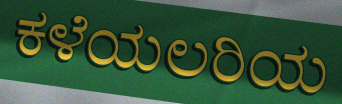
ಕಳೆಯಲರಿಯ